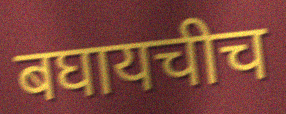
बघायचीच